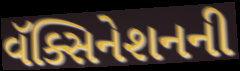
વૅક્સિનેશનની